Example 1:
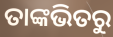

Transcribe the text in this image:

ତାଙ୍କଭିତରୁ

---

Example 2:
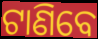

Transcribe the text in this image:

ଟାଣିବେ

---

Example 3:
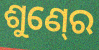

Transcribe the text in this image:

ଶୁଣ୍‍ରେ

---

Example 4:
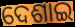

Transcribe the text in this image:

ଦେଶାଇ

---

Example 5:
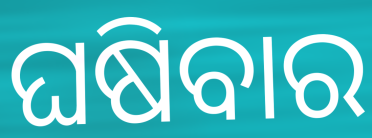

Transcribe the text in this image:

ଘଷିବାର